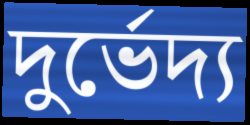
দুর্ভেদ্য